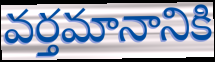
వర్తమానానికి